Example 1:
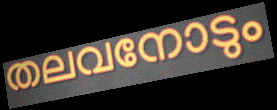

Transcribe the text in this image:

തലവനോടും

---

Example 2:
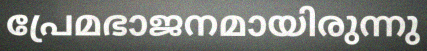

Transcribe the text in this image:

പ്രേമഭാജനമായിരുന്നു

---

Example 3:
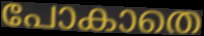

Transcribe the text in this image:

പോകാതെ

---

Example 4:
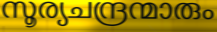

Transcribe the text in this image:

സൂര്യചന്ദ്രന്മാരും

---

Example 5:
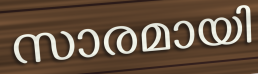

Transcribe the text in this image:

സാരമായി